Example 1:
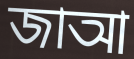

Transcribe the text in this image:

জাআ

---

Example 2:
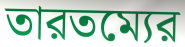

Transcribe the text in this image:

তারতম্যের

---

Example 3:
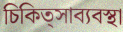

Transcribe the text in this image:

চিকিত্সাব্যবস্থা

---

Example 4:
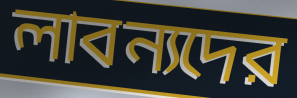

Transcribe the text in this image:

লাবন্যদের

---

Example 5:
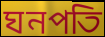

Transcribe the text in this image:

ঘনপতি